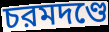
চরমদণ্ডে